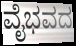
ವೈಭವದ